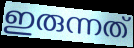
ഇരുന്നത്